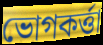
ভোগকর্ত্তা